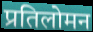
प्रतिलोमन